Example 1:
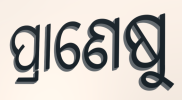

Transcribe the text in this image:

ପ୍ରାଣେଷୁ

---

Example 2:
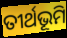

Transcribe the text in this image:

ତୀର୍ଥଭୂମି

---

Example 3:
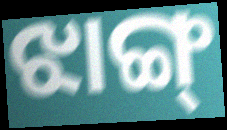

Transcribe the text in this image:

ଝାଙ୍ଗ୍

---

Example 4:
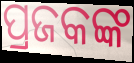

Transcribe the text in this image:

ପ୍ରଜକଙ୍କ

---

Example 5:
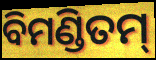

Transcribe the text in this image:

ବିମଣ୍ଡିତମ୍